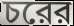
চরের